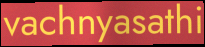
vachnyasathi